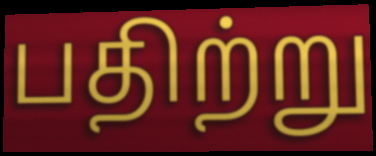
பதிற்று